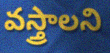
వస్త్రాలని